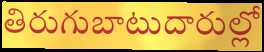
తిరుగుబాటుదారుల్లో